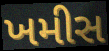
ખમીસ